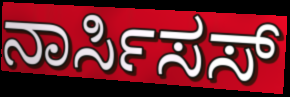
ನಾರ್ಸಿಸಸ್